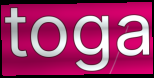
toga